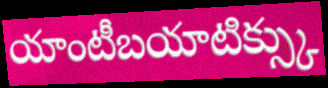
యాంటీబయాటిక్స్కు